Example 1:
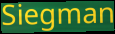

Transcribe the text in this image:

Siegman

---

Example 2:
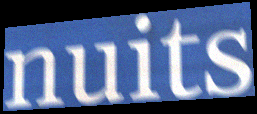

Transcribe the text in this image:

nuits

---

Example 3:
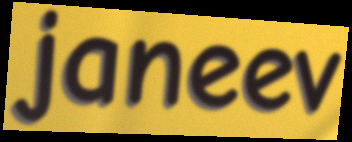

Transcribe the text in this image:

janeev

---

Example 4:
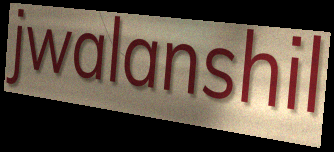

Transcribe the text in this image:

jwalanshil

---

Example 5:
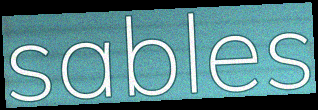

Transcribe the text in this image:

sables